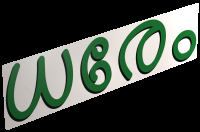
ധരേം